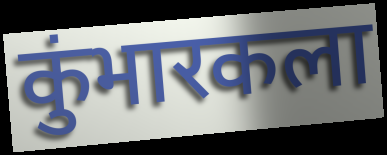
कुंभारकला